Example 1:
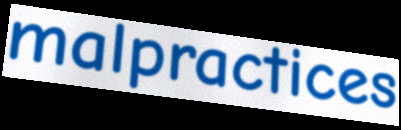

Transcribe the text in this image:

malpractices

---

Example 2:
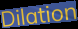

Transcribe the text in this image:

Dilation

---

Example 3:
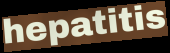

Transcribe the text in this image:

hepatitis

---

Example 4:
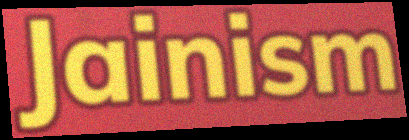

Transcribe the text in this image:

Jainism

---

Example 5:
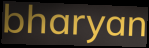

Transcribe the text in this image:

bharyan